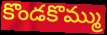
కొండకొమ్ము